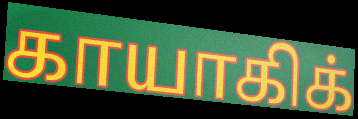
காயாகிக்